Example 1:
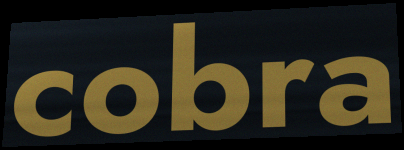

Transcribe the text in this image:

cobra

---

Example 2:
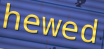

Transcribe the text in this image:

hewed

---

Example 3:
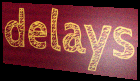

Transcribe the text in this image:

delays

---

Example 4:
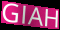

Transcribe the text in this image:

GIAH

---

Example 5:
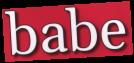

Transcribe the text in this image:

babe